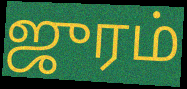
ஜுரம்